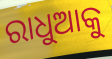
ରାଧୁଆକୁ